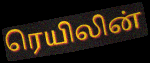
ரெயிலின்